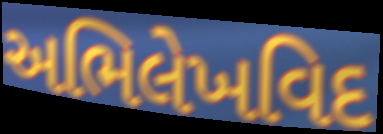
અભિલેખવિદ